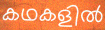
കഥകളിൽ